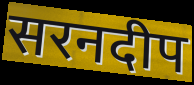
सरनदीप